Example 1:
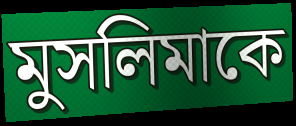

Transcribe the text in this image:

মুসলিমাকে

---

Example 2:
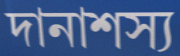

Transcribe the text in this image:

দানাশস্য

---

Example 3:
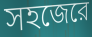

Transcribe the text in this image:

সহজেরে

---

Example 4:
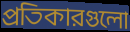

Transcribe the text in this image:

প্রতিকারগুলো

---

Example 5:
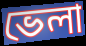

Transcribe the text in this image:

ভেলা